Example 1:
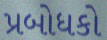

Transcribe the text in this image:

પ્રબોધકો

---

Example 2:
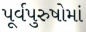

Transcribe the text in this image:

પૂર્વપુરુષોમાં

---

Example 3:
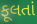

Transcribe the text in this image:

ફૂલતાં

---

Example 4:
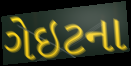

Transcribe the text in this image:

ગેઇટના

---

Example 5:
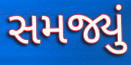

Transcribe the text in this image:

સમજ્યું